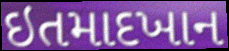
ઇતમાદખાન